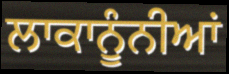
ਲਾਕਾਨੂੰਨੀਆਂ